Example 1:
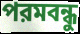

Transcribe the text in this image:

পরমবন্ধু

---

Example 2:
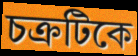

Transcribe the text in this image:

চক্রটিকে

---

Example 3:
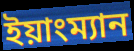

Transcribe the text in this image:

ইয়াংম্যান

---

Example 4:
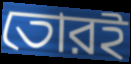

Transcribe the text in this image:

তোরই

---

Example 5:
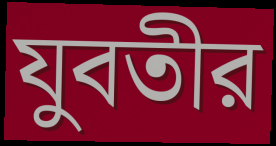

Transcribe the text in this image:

যুবতীর